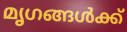
മൃഗങ്ങൾക്ക്